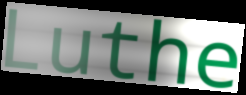
Luthe